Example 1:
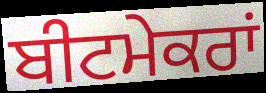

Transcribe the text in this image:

ਬੀਟਮੇਕਰਾਂ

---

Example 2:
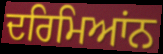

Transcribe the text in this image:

ਦਰਿਮਿਆਂਨ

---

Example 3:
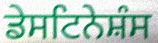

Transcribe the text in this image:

ਡੇਸਟਿਨੇਸ਼ੰਸ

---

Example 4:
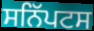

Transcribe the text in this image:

ਸਨਿੱਪਟਸ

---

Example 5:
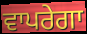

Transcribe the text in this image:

ਵਾਪਰੇਗਾ